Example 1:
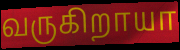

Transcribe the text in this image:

வருகிறாயா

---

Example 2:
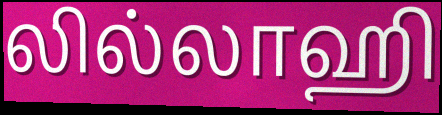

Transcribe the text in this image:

லில்லாஹி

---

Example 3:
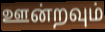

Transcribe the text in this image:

ஊன்றவும்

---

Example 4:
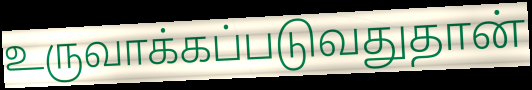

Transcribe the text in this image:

உருவாக்கப்படுவதுதான்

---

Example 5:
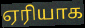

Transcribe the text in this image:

ஏரியாக